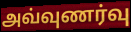
அவ்வுணர்வு